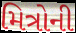
મિત્રોની